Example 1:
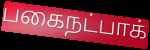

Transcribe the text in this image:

பகைநட்பாக்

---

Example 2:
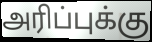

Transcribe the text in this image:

அரிப்புக்கு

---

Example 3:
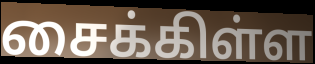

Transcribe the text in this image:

சைக்கிள்ள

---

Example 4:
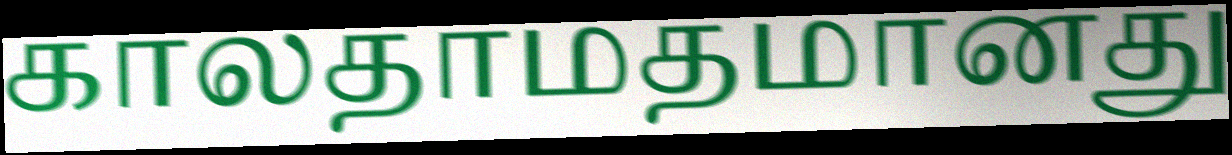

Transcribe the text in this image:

காலதாமதமானது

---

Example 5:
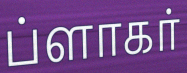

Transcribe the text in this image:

ப்ளாகர்